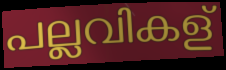
പല്ലവികള്